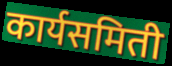
कार्यसमिती